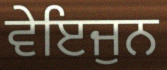
ਵੇਇਜੁਨ